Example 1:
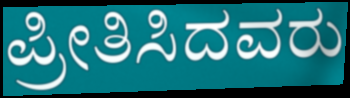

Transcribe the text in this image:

ಪ್ರೀತಿಸಿದವರು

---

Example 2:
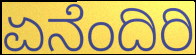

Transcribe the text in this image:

ಏನೆಂದಿರಿ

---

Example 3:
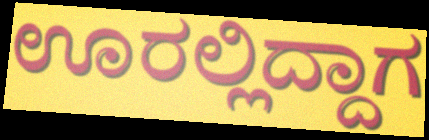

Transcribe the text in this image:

ಊರಲ್ಲಿದ್ದಾಗ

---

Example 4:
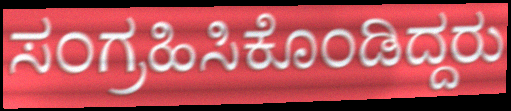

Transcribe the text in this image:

ಸಂಗ್ರಹಿಸಿಕೊಂಡಿದ್ದರು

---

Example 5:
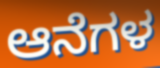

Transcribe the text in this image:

ಆನೆಗಳ